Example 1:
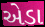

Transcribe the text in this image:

એડા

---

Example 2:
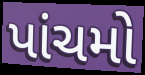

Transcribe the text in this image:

પાંચમો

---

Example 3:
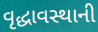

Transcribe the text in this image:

વૃદ્ધાવસ્થાની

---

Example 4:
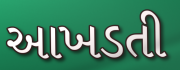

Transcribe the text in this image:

આખડતી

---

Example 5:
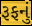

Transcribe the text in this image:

રૂફનું